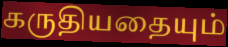
கருதியதையும்